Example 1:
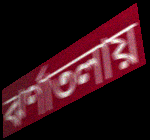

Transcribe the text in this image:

ঝর্ণাতলায়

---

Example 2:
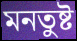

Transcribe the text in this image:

মনতুষ্ট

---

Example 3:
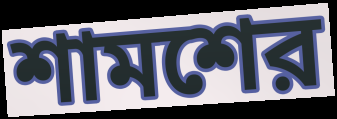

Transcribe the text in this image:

শামশের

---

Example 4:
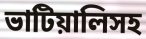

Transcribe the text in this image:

ভাটিয়ালিসহ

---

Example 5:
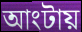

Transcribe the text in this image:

আংটায়